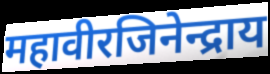
महावीरजिनेन्द्राय